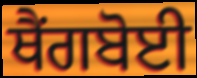
ਥੈਂਗਬੋਈ